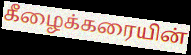
கீழைக்கரையின்